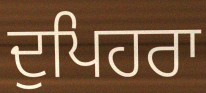
ਦੁਪਿਹਰਾ